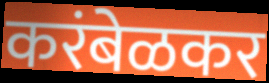
करंबेळकर